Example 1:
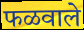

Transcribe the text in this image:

फळवाले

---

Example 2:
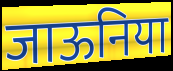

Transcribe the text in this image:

जाऊनिया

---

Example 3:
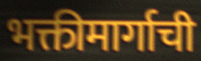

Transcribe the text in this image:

भक्तीमार्गाची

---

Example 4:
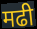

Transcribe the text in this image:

मढी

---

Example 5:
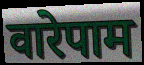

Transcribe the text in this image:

वारेपाम